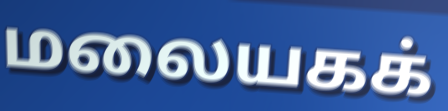
மலையகக்